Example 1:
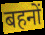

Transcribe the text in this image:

बहनों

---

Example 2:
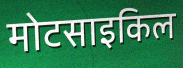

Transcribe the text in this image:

मोटसाइकिल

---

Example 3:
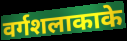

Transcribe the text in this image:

वर्गशलाकाके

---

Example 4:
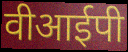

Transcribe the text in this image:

वीआईपी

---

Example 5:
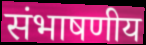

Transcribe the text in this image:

संभाषणीय